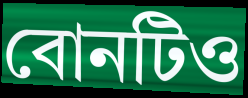
বোনটিও